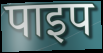
पाइप